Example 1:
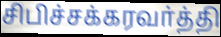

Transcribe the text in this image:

சிபிச்சக்கரவர்த்தி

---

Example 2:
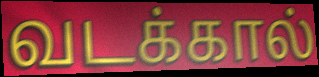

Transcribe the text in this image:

வடக்கால்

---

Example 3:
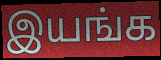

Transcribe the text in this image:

இயங்க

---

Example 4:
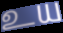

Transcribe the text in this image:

உய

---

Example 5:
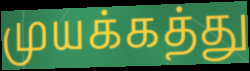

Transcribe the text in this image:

முயக்கத்து